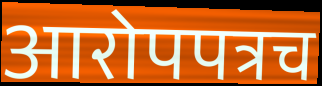
आरोपपत्रच